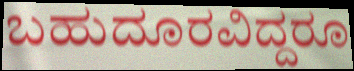
ಬಹುದೂರವಿದ್ದರೂ